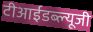
टीआईडब्ल्यूजी